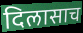
दिलासाच